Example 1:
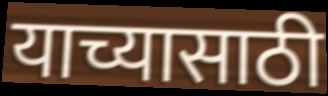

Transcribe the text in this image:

याच्यासाठी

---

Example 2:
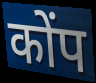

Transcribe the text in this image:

कोंप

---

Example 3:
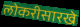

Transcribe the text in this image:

लोकरीसारखे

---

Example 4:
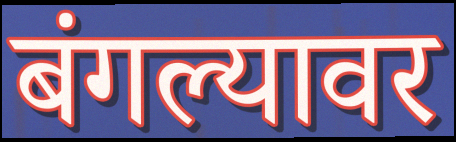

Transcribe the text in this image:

बंगल्यावर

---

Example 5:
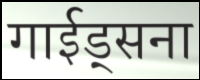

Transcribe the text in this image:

गाईड्सना